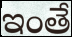
ఇంతే